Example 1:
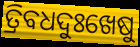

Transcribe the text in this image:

ତ୍ରିବଧଦୁଃଖେଷୁ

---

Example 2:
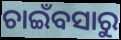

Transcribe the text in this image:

ଚାଇଁବସାରୁ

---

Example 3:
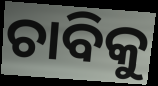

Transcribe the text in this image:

ଚାବିକୁ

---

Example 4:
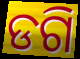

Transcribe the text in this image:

ଡଗି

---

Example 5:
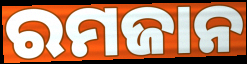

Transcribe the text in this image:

ରମଜାନ